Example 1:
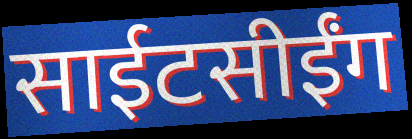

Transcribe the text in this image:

साईटसीईंग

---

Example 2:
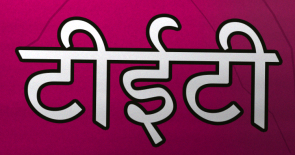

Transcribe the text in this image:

टीईटी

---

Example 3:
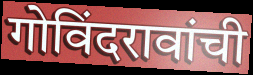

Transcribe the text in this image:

गोविंदरावांची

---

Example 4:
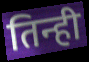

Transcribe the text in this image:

तिन्ही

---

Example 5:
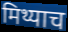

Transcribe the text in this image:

मिथ्याच